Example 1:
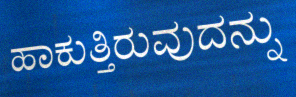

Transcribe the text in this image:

ಹಾಕುತ್ತಿರುವುದನ್ನು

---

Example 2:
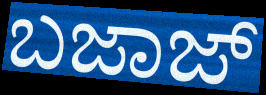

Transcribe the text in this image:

ಬಜಾಜ್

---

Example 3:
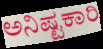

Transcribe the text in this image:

ಅನಿಷ್ಟಕಾರಿ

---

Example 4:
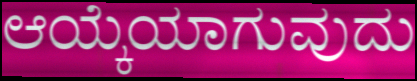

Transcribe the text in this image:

ಆಯ್ಕೆಯಾಗುವುದು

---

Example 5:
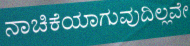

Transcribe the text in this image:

ನಾಚಿಕೆಯಾಗುವುದಿಲ್ಲವೇ